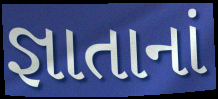
જ્ઞાતાનાં